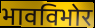
भावविभोर